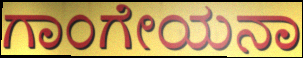
ಗಾಂಗೇಯನಾ